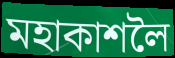
মহাকাশলৈ